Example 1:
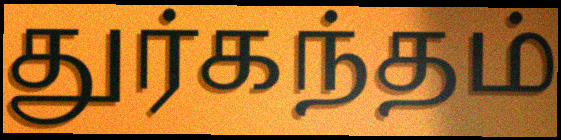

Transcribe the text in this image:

துர்கந்தம்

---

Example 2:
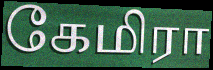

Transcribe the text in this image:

கேமிரா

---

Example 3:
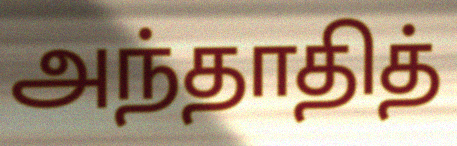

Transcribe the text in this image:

அந்தாதித்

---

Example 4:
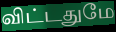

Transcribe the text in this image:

விட்டதுமே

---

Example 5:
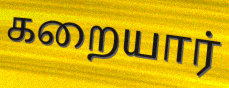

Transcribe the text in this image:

கறையார்